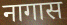
नागास